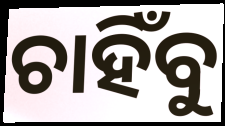
ଚାହିଁବୁ